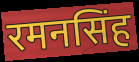
रमनसिंह